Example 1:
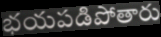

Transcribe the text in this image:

భయపడిపోతారు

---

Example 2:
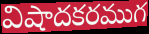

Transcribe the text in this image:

విషాదకరముగ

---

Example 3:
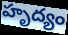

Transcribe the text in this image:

హృద్యం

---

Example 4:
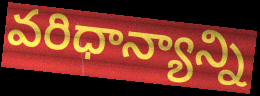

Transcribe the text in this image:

వరిధాన్యాన్ని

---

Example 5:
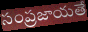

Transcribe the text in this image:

సంప్రజాయతే